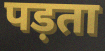
पड़ता